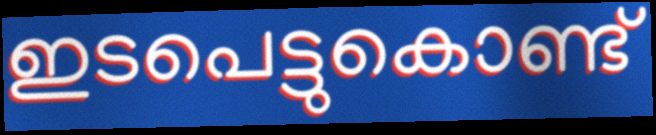
ഇടപെട്ടുകൊണ്ട്